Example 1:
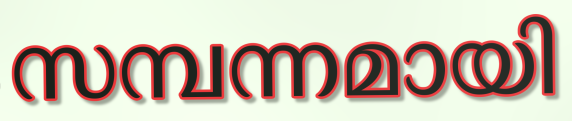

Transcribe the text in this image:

സമ്പന്നമായി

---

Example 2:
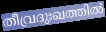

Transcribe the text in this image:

തീവ്രദുഃഖത്തിൽ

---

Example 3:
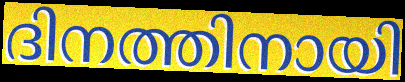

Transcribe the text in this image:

ദിനത്തിനായി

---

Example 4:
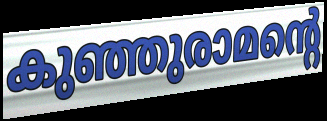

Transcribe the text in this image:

കുഞ്ഞുരാമന്റെ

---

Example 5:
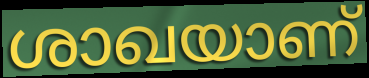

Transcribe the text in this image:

ശാഖയാണ്